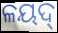
ଳୟଦ୍